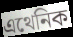
এথেনিক